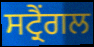
ਸਟ੍ਰੈਂਗਲ